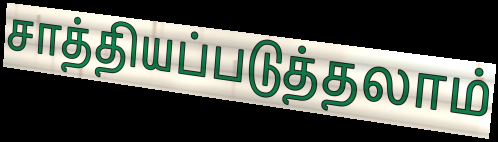
சாத்தியப்படுத்தலாம்